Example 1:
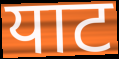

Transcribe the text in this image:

याट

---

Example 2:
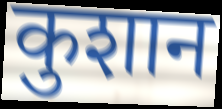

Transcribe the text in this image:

कुशान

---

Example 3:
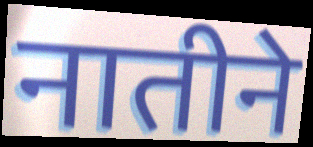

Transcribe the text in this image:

नातीने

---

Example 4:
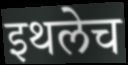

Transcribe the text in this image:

इथलेच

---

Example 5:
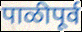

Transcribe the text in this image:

पाळीपूर्व